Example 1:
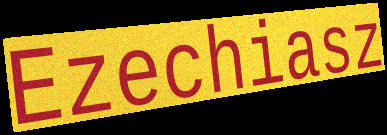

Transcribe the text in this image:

Ezechiasz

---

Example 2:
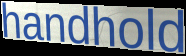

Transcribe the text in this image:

handhold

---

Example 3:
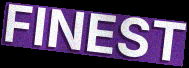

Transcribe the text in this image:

FINEST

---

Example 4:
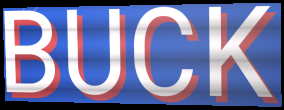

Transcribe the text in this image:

BUCK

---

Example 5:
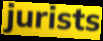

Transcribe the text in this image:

jurists